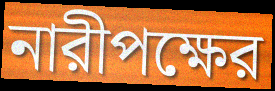
নারীপক্ষের